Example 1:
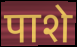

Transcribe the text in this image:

पाशे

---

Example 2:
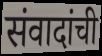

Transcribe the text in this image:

संवादांची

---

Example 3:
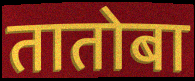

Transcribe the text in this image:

तातोबा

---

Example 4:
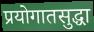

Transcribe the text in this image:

प्रयोगातसुद्धा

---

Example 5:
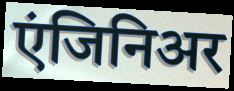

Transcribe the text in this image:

एंजिनिअर